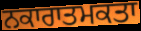
ਨਕਾਰਾਤਮਕਤਾ